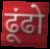
ढूंढो